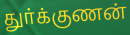
துர்க்குணன்